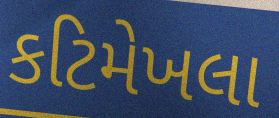
કટિમેખલા